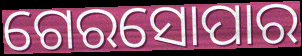
ଗେରସୋପାର